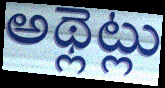
అథ్లెట్లు